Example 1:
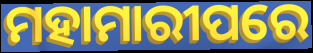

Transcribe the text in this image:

ମହାମାରୀପରେ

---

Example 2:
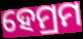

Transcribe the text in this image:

ହେମ୍ରମ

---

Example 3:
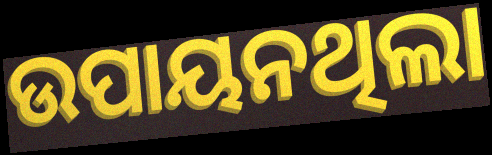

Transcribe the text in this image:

ଉପାୟନଥିଲା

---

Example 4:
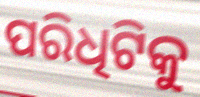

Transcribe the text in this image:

ପରିଧିଟିକୁ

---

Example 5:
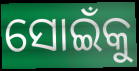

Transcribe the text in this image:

ସୋଇଁକୁ